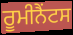
ਰੂਮੀਨੈਂਟਸ